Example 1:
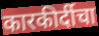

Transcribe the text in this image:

कारकीर्दीचा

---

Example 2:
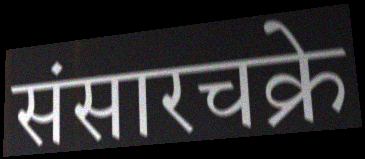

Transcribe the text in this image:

संसारचक्रे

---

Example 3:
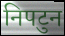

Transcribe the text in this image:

निपटुन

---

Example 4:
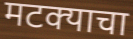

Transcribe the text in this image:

मटक्याचा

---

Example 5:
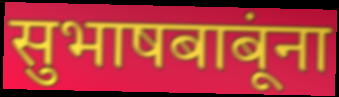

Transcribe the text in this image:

सुभाषबाबूंना